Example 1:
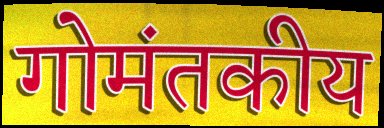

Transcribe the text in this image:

गोमंतकीय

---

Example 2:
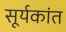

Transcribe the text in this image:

सूर्यकांत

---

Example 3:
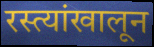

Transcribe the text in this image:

रस्त्यांखालून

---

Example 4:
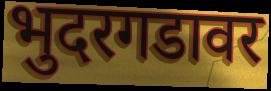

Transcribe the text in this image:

भुदरगडावर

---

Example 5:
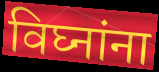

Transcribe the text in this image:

विघ्नांना